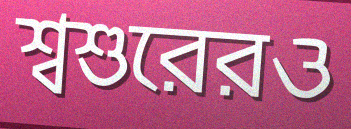
শ্বশুরেরও